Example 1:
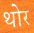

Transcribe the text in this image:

थोर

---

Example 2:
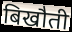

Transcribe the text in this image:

बिखौती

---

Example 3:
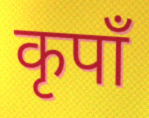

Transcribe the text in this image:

कृपाँ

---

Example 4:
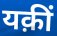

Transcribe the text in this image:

यक़ीं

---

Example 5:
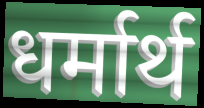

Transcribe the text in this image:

धर्मार्थ